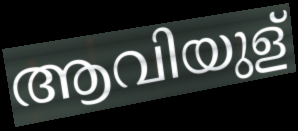
ആവിയുള്